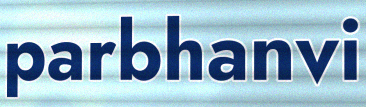
parbhanvi